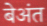
बेअंत